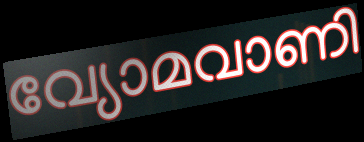
വ്യോമവാണി